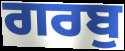
ਗਰਬੁ